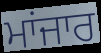
ਮਾਂਜਾਰ